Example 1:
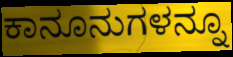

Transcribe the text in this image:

ಕಾನೂನುಗಳನ್ನೂ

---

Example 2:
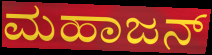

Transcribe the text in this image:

ಮಹಾಜನ್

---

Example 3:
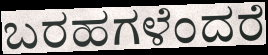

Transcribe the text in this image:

ಬರಹಗಳೆಂದರೆ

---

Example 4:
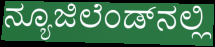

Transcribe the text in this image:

ನ್ಯೂಜಿಲೆಂಡ್‌ನಲ್ಲಿ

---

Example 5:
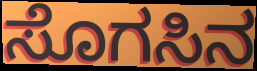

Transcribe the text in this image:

ಸೊಗಸಿನ